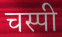
चस्पी